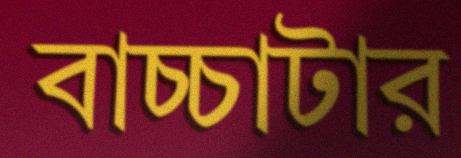
বাচ্চাটার